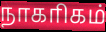
நாகரிகம்